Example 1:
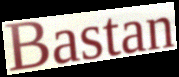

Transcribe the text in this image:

Bastan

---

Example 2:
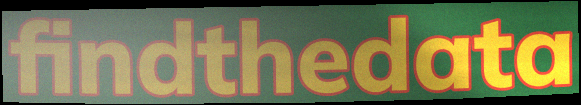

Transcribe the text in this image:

findthedata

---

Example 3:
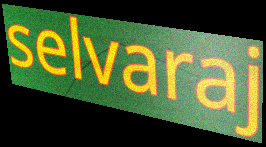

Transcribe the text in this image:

selvaraj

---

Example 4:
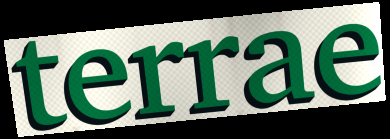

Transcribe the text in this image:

terrae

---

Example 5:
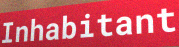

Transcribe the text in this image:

Inhabitant